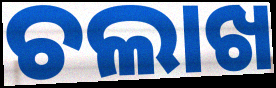
ଚଲାଖ